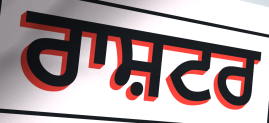
ਰਾਸ਼ਟਰ